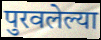
पुरवलेल्या